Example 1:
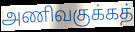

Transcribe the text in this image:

அணிவகுக்கத்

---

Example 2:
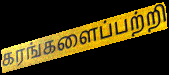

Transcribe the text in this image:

கரங்களைப்பற்றி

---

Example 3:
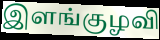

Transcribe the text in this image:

இளங்குழவி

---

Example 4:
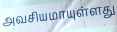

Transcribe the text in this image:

அவசியமாயுள்ளது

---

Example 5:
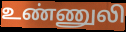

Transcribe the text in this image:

உண்ணுலி